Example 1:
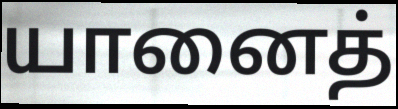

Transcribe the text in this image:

யானைத்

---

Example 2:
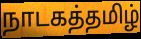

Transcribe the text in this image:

நாடகத்தமிழ்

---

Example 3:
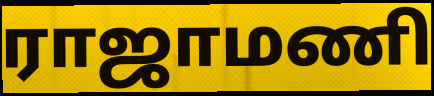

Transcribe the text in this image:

ராஜாமணி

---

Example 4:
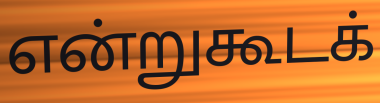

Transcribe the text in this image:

என்றுகூடக்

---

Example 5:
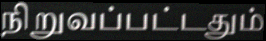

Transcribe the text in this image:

நிறுவப்பட்டதும்